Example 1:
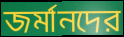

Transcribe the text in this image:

জর্মানদের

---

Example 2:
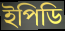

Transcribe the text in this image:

ইপিডি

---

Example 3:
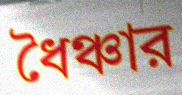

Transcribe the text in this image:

ধৈঞ্চার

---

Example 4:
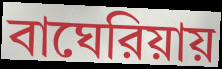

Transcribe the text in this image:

বাঘেরিয়ায়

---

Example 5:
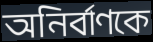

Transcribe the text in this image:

অনির্বাণকে